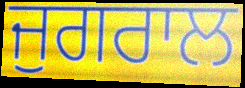
ਜੁਗਰਾਲ